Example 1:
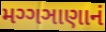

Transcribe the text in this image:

મગ્ગઞાણાનં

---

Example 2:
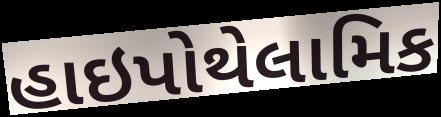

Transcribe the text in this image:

હાઇપોથેલામિક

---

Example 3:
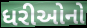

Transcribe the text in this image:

ધરીઓનો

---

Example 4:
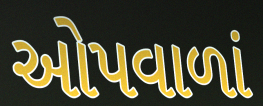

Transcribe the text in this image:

ઓપવાળાં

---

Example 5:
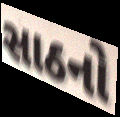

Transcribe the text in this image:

સાઠનો